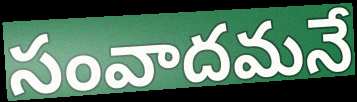
సంవాదమనే